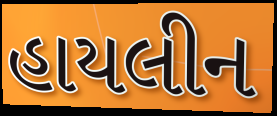
હાયલીન